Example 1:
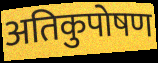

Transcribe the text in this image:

अतिकुपोषण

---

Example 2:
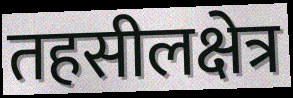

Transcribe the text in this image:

तहसीलक्षेत्र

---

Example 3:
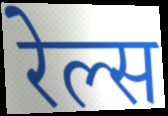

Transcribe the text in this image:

रेल्स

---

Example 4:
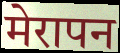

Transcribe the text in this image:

मेरापन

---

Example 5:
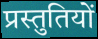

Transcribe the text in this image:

प्रस्तुतियों